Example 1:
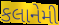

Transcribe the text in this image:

કલાનેમી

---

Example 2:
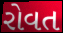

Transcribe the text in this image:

રોવત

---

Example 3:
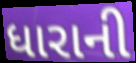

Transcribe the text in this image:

ધારાની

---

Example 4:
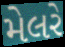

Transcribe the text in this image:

મેલરે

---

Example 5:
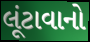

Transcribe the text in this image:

લૂંટાવાનો